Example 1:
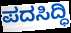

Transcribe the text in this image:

ಪದಸಿದ್ಧಿ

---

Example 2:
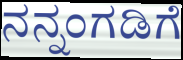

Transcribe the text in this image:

ನನ್ನಂಗಡಿಗೆ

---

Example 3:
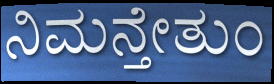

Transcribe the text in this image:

ನಿಮನ್ತೇತುಂ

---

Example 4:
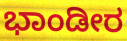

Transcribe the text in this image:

ಭಾಂಡೀರ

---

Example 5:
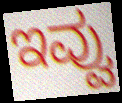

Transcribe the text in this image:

ಇವ್ವು